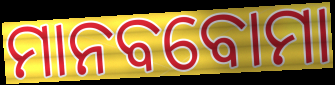
ମାନବବୋମା